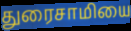
துரைசாமியை